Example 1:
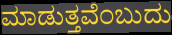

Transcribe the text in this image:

ಮಾಡುತ್ತವೆಂಬುದು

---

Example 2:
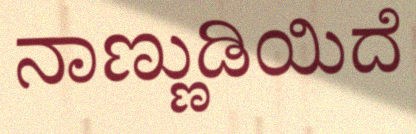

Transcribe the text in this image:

ನಾಣ್ಣುಡಿಯಿದೆ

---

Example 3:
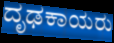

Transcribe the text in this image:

ದೃಢಕಾಯರು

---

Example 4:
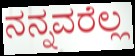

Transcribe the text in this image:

ನನ್ನವರೆಲ್ಲ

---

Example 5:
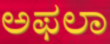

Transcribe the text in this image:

ಅಫಲಾ